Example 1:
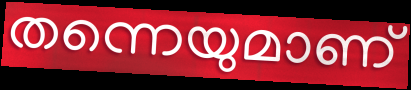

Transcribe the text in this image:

തന്നെയുമാണ്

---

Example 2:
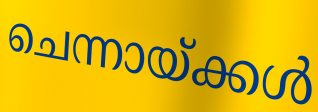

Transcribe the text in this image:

ചെന്നായ്ക്കൾ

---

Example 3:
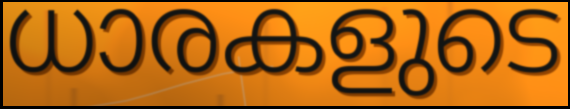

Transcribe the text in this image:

ധാരകളുടെ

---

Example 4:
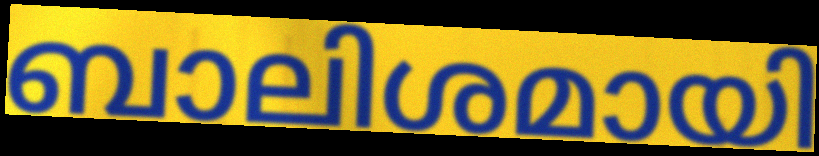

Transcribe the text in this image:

ബാലിശമായി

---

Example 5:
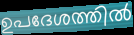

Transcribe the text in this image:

ഉപദേശത്തിൽ